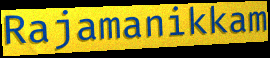
Rajamanikkam